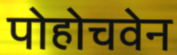
पोहोचवेन